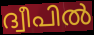
ദ്വീപിൽ